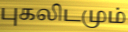
புகலிடமும்